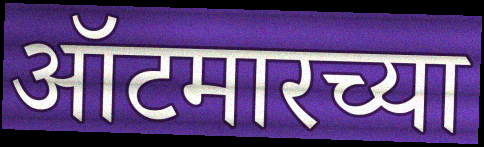
ऑटमारच्या